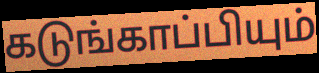
கடுங்காப்பியும்